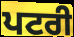
ਪਟਰੀ